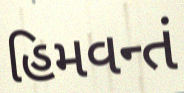
હિમવન્તં